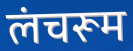
लंचरूम